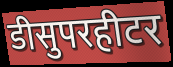
डीसुपरहीटर